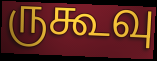
ருகூவு